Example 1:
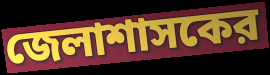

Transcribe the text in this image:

জেলাশাসকের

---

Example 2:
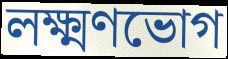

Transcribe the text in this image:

লক্ষ্মণভোগ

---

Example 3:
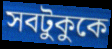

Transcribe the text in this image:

সবটুকুকে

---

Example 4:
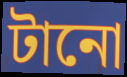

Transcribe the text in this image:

টানো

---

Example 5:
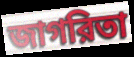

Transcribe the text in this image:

জাগরিতা